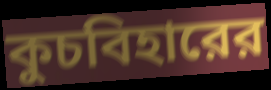
কুচবিহারের